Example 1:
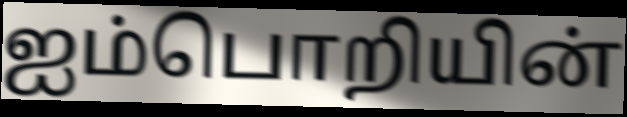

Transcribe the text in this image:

ஐம்பொறியின்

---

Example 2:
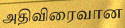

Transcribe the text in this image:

அதிவிரைவான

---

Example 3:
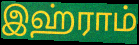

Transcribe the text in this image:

இஹ்ராம்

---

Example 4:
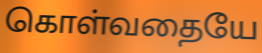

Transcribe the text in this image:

கொள்வதையே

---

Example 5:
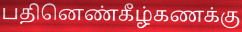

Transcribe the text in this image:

பதினெண்கீழ்கணக்கு